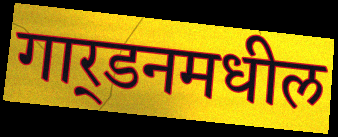
गार्डनमधील